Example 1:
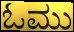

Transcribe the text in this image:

ಓಮು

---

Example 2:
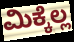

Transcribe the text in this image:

ಮಿಕ್ಕೆಲ್ಲ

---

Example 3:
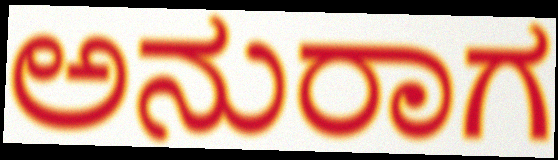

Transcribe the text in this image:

ಅನುರಾಗ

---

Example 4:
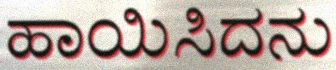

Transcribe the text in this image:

ಹಾಯಿಸಿದನು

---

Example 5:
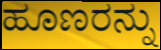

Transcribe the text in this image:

ಹೂಣರನ್ನು